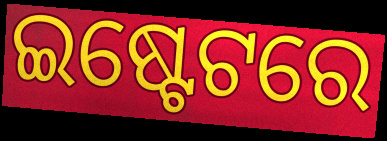
ଇଷ୍ଟେଟରେ